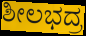
ಶೀಲಭದ್ರ